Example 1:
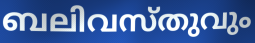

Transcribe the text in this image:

ബലിവസ്തുവും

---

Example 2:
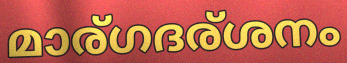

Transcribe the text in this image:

മാര്ഗദര്ശനം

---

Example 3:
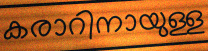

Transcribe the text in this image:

കരാറിനായുള്ള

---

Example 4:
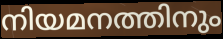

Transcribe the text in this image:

നിയമനത്തിനും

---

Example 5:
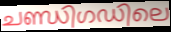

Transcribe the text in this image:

ചണ്ഡിഗഡിലെ